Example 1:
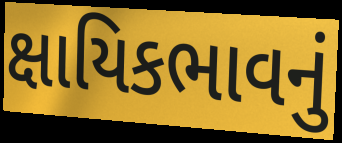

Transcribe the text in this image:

ક્ષાયિકભાવનું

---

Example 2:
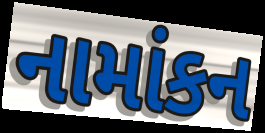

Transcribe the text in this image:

નામાંકન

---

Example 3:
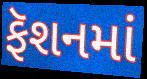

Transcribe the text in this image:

ફૅશનમાં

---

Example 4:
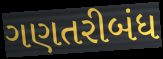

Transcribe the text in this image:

ગણતરીબંધ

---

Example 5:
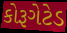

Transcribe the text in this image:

કોરૂગેટેડ